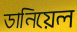
ডানিয়েল